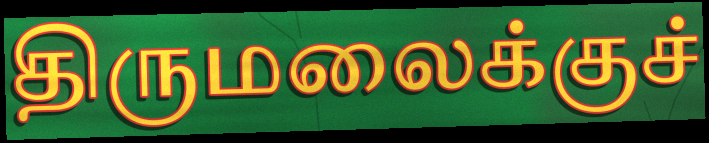
திருமலைக்குச்